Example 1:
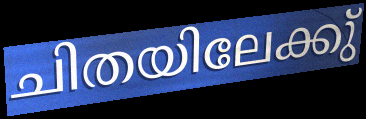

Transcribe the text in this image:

ചിതയിലേക്കു്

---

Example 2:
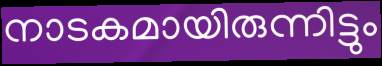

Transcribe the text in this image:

നാടകമായിരുന്നിട്ടും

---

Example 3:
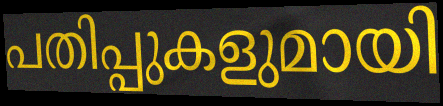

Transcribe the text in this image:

പതിപ്പുകളുമായി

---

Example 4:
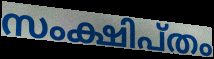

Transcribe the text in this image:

സംക്ഷിപ്തം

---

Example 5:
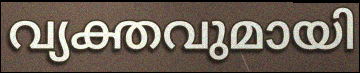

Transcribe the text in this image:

വ്യക്തവുമായി